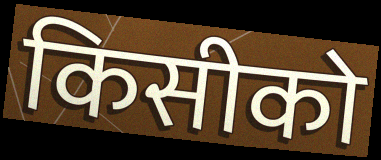
किसीको